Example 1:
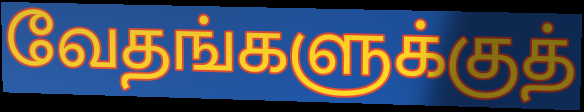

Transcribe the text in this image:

வேதங்களுக்குத்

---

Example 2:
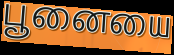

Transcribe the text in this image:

பூனையை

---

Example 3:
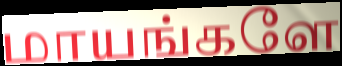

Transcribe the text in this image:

மாயங்களே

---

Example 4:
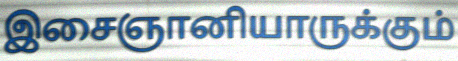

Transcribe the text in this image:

இசைஞானியாருக்கும்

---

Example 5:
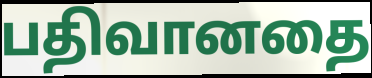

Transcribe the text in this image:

பதிவானதை